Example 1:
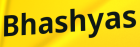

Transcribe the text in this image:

Bhashyas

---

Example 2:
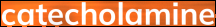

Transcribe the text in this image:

catecholamine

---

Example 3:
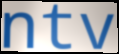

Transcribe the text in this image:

ntv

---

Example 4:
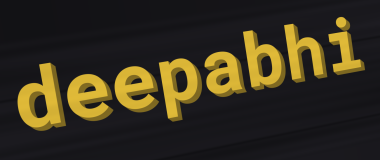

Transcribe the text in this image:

deepabhi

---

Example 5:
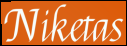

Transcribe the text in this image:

Niketas